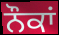
ਨੌਕਾਂ